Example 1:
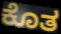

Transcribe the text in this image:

ಕೊತ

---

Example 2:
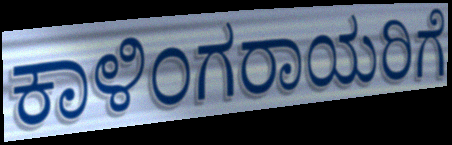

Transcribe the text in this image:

ಕಾಳಿಂಗರಾಯರಿಗೆ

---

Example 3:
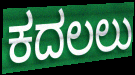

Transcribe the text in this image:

ಕದಲಲು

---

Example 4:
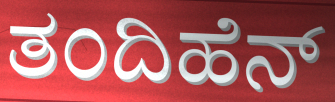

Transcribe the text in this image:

ತಂದಿಹೆನ್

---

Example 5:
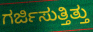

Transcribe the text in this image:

ಗರ್ಜಿಸುತ್ತಿತ್ತು